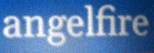
angelfire